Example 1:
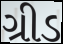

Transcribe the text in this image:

ગ્રીડ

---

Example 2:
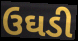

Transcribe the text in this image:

ઉઘડી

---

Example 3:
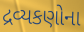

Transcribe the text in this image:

દ્રવ્યકણોના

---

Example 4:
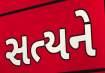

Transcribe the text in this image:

સત્યને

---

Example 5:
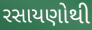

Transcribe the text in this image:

રસાયણોથી